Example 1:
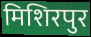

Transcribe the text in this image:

मिशिरपुर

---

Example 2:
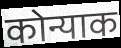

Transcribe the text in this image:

कोन्याक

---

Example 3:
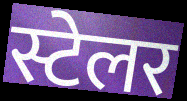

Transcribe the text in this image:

स्टेलर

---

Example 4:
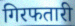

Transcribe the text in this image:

गिरफतारी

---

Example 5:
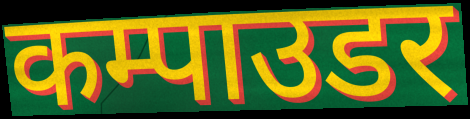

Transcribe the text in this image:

कम्पाउडर